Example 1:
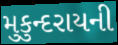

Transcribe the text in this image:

મુકુન્દરાયની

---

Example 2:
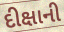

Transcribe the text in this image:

દીક્ષાની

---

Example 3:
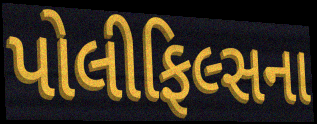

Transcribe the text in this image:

પોલીફિલ્સના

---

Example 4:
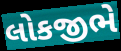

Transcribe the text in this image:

લોકજીભે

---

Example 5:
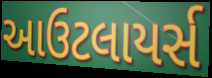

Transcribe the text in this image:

આઉટલાયર્સ